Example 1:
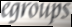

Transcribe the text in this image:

egroups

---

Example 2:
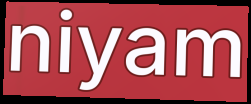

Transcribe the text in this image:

niyam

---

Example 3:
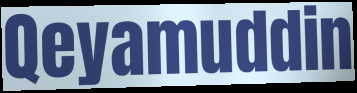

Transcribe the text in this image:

Qeyamuddin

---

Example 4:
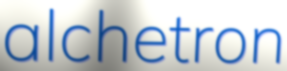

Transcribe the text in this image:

alchetron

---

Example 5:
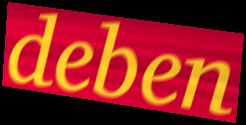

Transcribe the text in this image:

deben